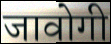
जावोगी